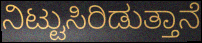
ನಿಟ್ಟುಸಿರಿಡುತ್ತಾನೆ